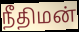
நீதிமன்